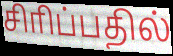
சிரிப்பதில்